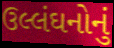
ઉલ્લંઘનોનું